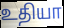
உதியா